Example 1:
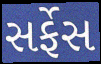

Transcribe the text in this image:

સર્ફેસ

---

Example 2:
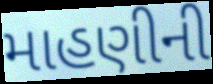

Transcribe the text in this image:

માહણીની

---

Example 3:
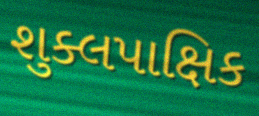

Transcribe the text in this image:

શુક્લપાક્ષિક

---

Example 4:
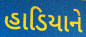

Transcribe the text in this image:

હાડિયાને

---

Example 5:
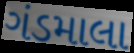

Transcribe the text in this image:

ગંડમાલા